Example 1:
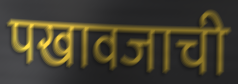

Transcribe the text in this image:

पखावजाची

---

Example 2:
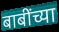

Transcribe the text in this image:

बाबींच्या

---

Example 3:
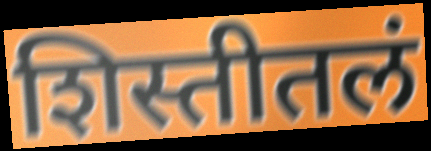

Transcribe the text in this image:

शिस्तीतलं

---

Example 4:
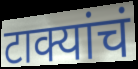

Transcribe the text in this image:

टाक्यांचं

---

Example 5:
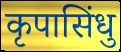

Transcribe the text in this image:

कृपासिंधु